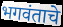
भगवंताचे